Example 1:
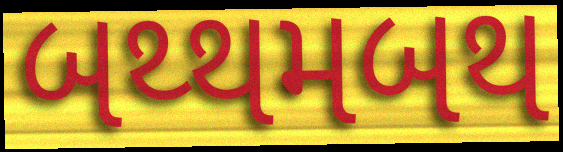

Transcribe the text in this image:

બથ્થમબથ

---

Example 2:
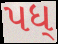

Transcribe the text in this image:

પધ્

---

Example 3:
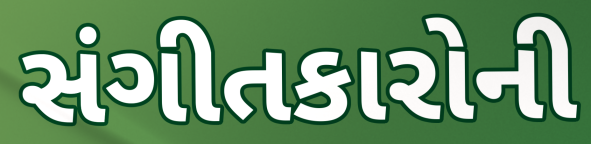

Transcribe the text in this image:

સંગીતકારોની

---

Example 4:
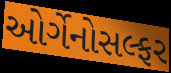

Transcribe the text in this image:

ઓર્ગેનોસલ્ફર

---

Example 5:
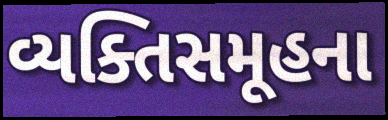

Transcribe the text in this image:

વ્યક્તિસમૂહના